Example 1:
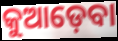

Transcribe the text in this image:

କୁଆଡ଼େବା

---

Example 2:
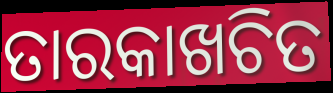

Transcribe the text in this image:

ତାରକାଖଚିତ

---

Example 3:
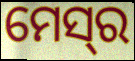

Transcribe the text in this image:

ମେସ୍‌ର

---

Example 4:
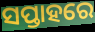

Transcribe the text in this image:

ସପ୍ତାହରେ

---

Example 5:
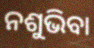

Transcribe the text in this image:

ନଶୁଭିବା